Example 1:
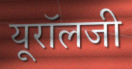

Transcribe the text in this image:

यूरॉलजी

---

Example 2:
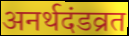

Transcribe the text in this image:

अनर्थदंडव्रत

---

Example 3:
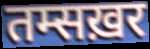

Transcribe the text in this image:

तम्सख़र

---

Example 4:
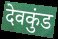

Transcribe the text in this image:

देवकुंड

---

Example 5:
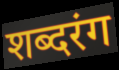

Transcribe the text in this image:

शब्दरंग